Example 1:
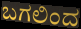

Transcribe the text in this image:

ಬಗಲಿಂದ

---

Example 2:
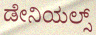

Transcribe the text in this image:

ಡೇನಿಯಲ್ಸ್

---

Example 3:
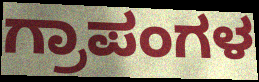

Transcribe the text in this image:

ಗ್ರಾಪಂಗಳ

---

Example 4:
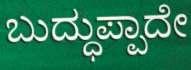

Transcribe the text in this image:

ಬುದ್ಧುಪ್ಪಾದೇ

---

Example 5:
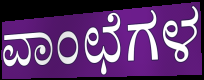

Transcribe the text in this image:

ವಾಂಛೆಗಳ